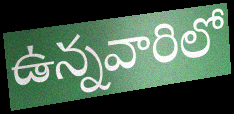
ఉన్నవారిలో